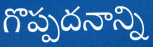
గొప్పదనాన్ని